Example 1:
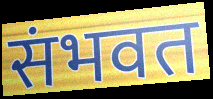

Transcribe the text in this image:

संभवत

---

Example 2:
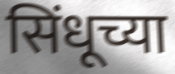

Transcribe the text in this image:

सिंधूच्या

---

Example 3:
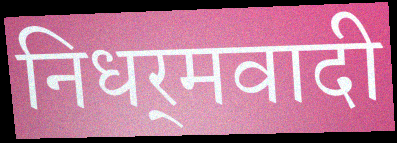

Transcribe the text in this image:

निधर्मवादी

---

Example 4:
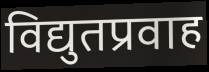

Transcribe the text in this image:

विद्युतप्रवाह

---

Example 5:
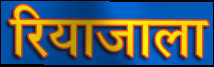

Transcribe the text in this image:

रियाजाला